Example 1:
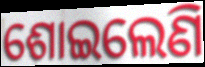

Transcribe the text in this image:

ଶୋଇଲେଣି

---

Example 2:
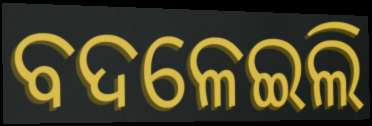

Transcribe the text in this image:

ବଦଳେଇଲି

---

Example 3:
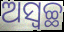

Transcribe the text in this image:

ଅସ୍ଵଚ୍ଛ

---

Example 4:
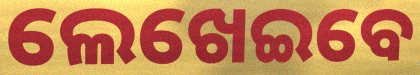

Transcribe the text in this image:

ଲେଖେଇବେ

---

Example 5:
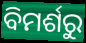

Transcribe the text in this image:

ବିମର୍ଶରୁ